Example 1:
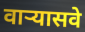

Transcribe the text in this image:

वाऱ्यासवे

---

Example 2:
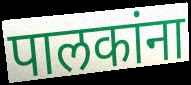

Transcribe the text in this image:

पालकांना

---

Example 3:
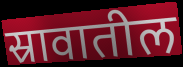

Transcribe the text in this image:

स्रावातील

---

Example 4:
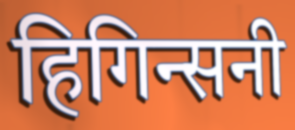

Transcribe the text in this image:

हिगिन्सनी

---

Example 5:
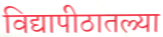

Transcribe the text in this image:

विद्यापीठातल्या